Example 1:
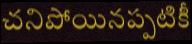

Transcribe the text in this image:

చనిపోయినప్పటికీ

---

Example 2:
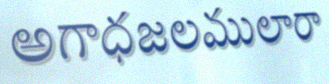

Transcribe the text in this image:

అగాధజలములారా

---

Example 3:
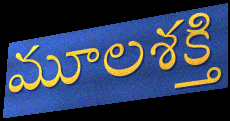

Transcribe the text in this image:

మూలశక్తి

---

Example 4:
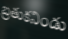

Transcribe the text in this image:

బ్రతుకనిండు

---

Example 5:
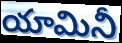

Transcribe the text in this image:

యామినీ